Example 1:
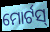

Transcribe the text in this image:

ମୋର୍ଟସ୍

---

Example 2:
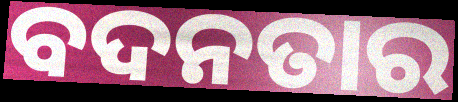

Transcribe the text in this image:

ବଦନତାର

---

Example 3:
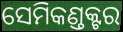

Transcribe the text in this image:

ସେମିକଣ୍ଡକ୍ଟର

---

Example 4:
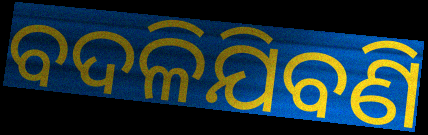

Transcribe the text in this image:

ବଦଳିଯିବଣି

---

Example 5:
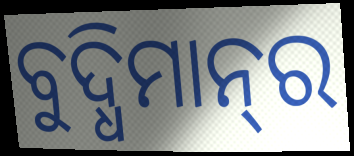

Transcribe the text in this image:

ବୁଦ୍ଧିମାନ୍‍ର